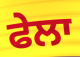
ਫੇਲਾ